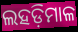
ଲହଡ଼ିମାଳ